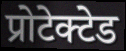
प्रोटेक्टेड